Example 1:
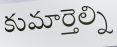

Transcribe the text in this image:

కుమార్తెల్ని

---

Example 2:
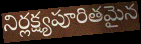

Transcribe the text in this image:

నిర్లక్ష్యపూరితమైన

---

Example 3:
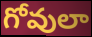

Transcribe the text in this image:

గోవులా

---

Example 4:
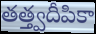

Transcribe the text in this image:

తత్త్వదీపికా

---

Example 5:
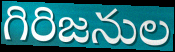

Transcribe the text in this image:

గిరిజనుల